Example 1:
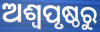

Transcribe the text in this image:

ଅଶ୍ଵପୃଷ୍ଠରୁ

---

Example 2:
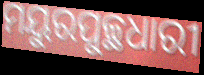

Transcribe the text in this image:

ମୟୁରପୁଚ୍ଛଧାରୀ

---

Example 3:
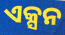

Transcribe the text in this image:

ଏକ୍ସନ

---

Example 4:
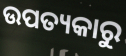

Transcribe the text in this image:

ଉପତ୍ୟକାରୁ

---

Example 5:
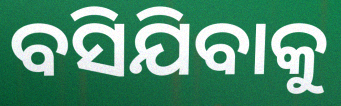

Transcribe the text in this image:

ବସିଯିବାକୁ